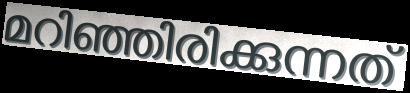
മറിഞ്ഞിരിക്കുന്നത്